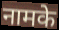
नामके